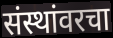
संस्थांवरचा